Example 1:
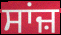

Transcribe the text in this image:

ਸਾਂਜ਼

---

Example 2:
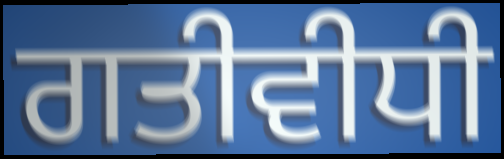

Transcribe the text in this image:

ਗਤੀਵੀਧੀ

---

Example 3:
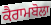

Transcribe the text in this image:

ਕੈਰਾਮਬੋਲਾ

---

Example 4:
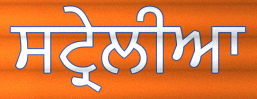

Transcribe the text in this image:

ਸਟ੍ਰੇਲੀਆ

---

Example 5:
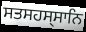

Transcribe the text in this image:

ਸਤਸਹਸ੍ਸਾਨਿ